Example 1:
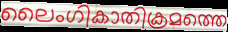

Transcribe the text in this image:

ലൈംഗികാതിക്രമത്തെ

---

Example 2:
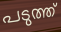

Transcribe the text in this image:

പടുത്ത്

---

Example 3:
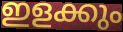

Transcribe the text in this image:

ഇളക്കും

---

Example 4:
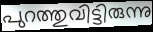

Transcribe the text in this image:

പുറത്തുവിട്ടിരുന്നു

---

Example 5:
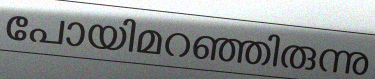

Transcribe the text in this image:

പോയിമറഞ്ഞിരുന്നു